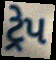
ટ્રેપ